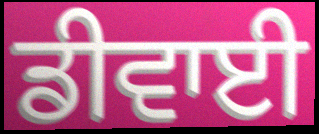
ਡੀਵਾਈ